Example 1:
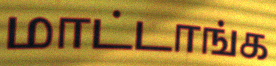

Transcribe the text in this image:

மாட்டாங்க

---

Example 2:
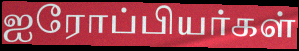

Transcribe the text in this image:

ஐரோப்பியர்கள்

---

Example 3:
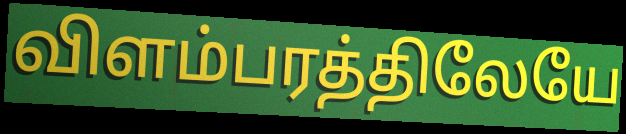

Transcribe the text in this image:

விளம்பரத்திலேயே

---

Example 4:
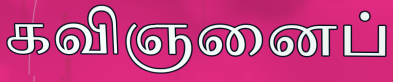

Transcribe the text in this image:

கவிஞனைப்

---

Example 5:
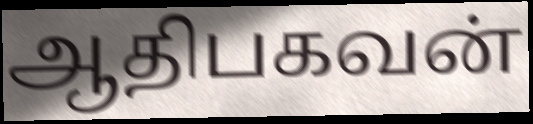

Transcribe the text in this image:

ஆதிபகவன்